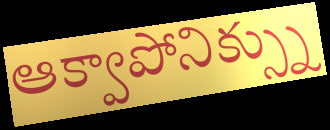
ఆక్వాపోనిక్స్ను